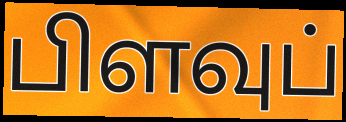
பிளவுப்